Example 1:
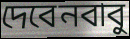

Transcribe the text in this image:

দেবেনবাবু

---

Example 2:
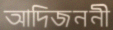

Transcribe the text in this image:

আদিজননী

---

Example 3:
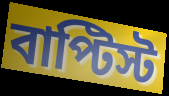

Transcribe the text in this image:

বাপ্টিস্ট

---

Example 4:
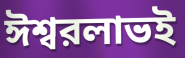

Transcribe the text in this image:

ঈশ্বরলাভই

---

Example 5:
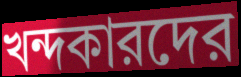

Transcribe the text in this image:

খন্দকারদের